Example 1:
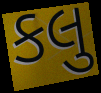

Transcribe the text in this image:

કલુ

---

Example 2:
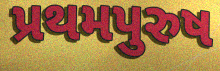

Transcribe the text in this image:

પ્રથમપુરુષ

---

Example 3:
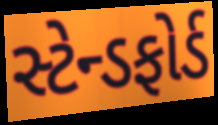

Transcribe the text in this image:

સ્ટેન્ડફોર્ડ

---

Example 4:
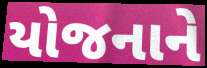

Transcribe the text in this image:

યોજનાને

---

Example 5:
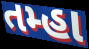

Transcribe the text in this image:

તમ્હા